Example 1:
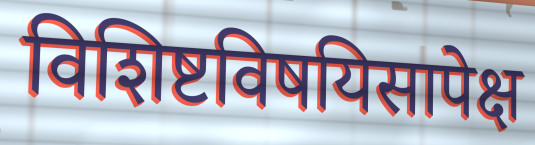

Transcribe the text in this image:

विशिष्टविषयिसापेक्ष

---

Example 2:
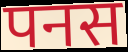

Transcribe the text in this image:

पनस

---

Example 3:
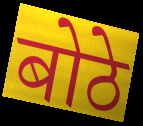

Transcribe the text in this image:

बोठे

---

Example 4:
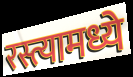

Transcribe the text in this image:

रस्त्यामध्ये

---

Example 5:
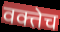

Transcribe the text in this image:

वक्तेच